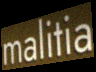
malitia